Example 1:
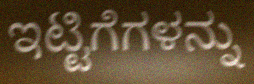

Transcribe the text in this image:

ಇಟ್ಟಿಗೆಗಳನ್ನು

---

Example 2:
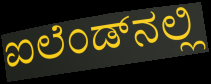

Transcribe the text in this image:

ಐಲೆಂಡ್‌ನಲ್ಲಿ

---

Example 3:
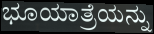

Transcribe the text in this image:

ಭೂಯಾತ್ರೆಯನ್ನು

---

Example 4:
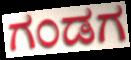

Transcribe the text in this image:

ಗಂಡಗ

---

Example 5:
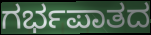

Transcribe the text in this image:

ಗರ್ಭಪಾತದ